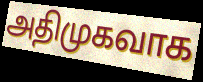
அதிமுகவாக